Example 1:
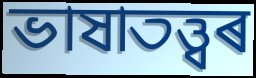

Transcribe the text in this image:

ভাষাতত্ত্বৰ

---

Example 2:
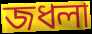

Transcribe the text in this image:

জধলা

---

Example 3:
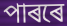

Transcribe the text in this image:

পাৰৰে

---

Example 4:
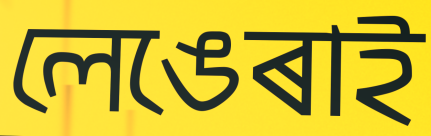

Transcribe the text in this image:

লেঙেৰাই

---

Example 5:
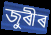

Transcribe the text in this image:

জুৰীৰ